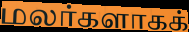
மலர்களாகக்